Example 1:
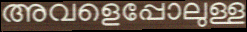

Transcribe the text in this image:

അവളെപ്പോലുള്ള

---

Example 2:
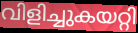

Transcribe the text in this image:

വിളിച്ചുകയറ്റി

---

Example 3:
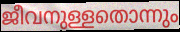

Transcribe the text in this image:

ജീവനുള്ളതൊന്നും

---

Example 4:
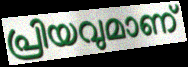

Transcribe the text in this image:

പ്രിയവുമാണ്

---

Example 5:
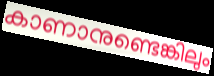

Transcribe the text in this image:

കാണാനുണ്ടെങ്കിലും